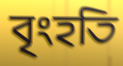
বৃংহতি